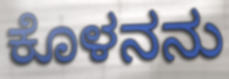
ಕೊಳನನು